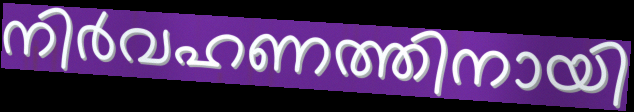
നിർവഹണത്തിനായി